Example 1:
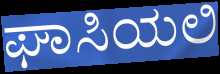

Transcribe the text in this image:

ಘಾಸಿಯಲಿ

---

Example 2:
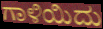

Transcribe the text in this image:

ಗಾಳಿಯಿದು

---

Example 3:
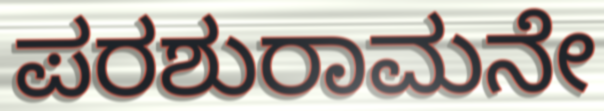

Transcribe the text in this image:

ಪರಶುರಾಮನೇ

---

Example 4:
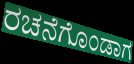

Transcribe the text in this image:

ರಚನೆಗೊಂಡಾಗ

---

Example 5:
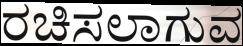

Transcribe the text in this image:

ರಚಿಸಲಾಗುವ